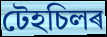
টেহচিলৰ